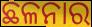
ଛଳନାର